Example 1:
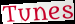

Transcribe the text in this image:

Tunes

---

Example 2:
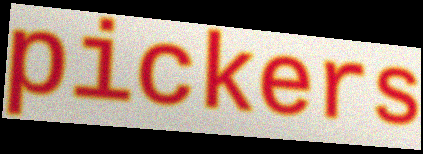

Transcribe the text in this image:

pickers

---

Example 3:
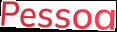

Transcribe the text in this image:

Pessoa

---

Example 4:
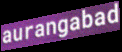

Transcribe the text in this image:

aurangabad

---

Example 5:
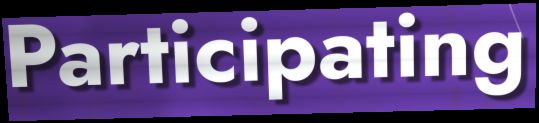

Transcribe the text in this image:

Participating